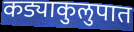
कड्याकुलुपात